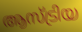
ആസ്ട്രിയ